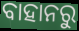
ବାହାନରୁ